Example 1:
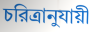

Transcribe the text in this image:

চরিত্রানুযায়ী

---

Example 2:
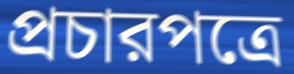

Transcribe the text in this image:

প্রচারপত্রে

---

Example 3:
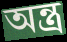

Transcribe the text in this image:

অন্ত্র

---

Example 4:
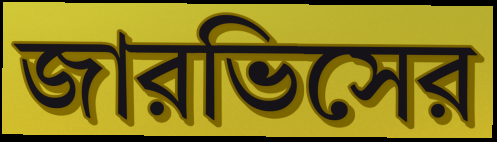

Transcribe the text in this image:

জারভিসের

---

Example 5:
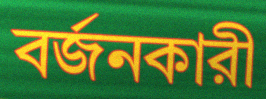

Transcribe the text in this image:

বর্জনকারী